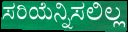
ಸರಿಯೆನ್ನಿಸಲಿಲ್ಲ